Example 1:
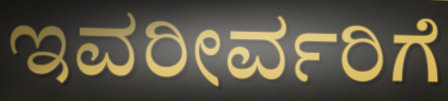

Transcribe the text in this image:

ಇವರೀರ್ವರಿಗೆ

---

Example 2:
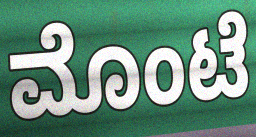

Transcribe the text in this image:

ಮೊಂಟೆ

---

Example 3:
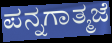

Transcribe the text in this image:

ಪನ್ನಗಾತ್ಮಜೆ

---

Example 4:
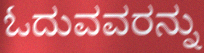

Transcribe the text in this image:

ಓದುವವರನ್ನು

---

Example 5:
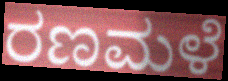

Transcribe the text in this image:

ರಣಮಳೆ